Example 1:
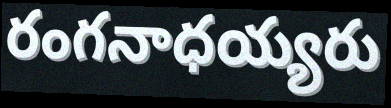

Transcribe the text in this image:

రంగనాధయ్యరు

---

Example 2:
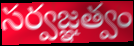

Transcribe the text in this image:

సర్వజ్ఞత్వం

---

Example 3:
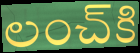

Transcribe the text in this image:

లంచ్‌కి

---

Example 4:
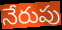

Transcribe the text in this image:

నేరుపు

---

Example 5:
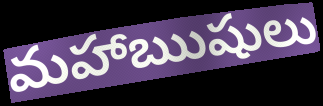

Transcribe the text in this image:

మహాఋషులు